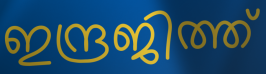
ഇന്ദ്രജിത്ത്